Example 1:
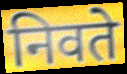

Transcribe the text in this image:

निवते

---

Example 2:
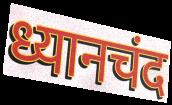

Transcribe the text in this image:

ध्यानचंद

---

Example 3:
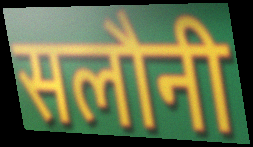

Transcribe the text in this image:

सलौनी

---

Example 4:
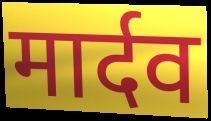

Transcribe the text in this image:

मार्दव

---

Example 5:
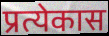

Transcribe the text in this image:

प्रत्येकास